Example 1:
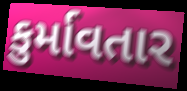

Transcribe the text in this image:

કુર્માવતાર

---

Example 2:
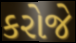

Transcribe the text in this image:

કરોજે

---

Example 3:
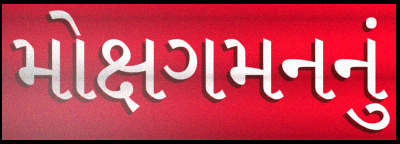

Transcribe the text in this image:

મોક્ષગમનનું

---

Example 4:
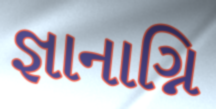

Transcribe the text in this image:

જ્ઞાનાગ્નિ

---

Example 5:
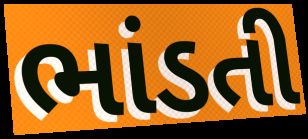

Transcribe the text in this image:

ભાંડતી